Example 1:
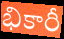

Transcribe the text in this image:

భికారీ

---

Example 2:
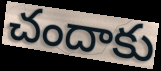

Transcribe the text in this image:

చందాకు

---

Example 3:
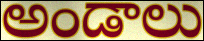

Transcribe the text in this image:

అండాలు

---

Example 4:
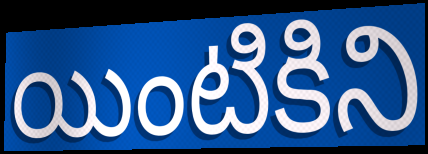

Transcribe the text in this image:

యింటికిని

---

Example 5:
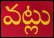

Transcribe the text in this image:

వట్లు